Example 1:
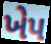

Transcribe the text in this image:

ખેપ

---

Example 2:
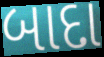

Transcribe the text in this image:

બાદા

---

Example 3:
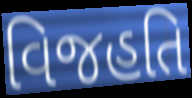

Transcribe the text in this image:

વિજહતિ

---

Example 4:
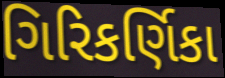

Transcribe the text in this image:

ગિરિકર્ણિકા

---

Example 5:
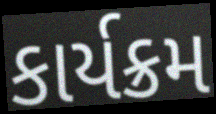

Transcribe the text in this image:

કાર્યક્રમ